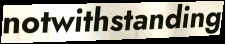
notwithstanding